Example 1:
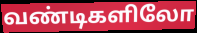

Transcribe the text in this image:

வண்டிகளிலோ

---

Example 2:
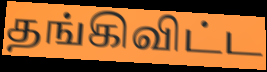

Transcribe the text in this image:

தங்கிவிட்ட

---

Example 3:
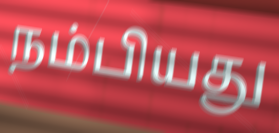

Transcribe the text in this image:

நம்பியது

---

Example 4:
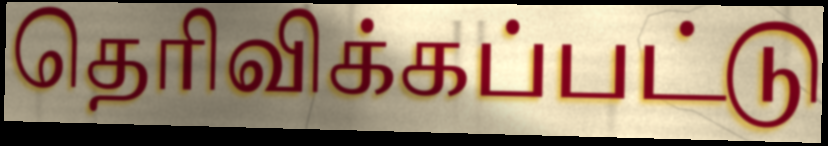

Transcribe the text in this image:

தெரிவிக்கப்பட்டு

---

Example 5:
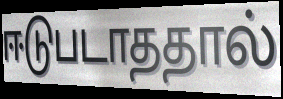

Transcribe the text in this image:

ஈடுபடாததால்